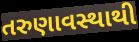
તરુણાવસ્થાથી